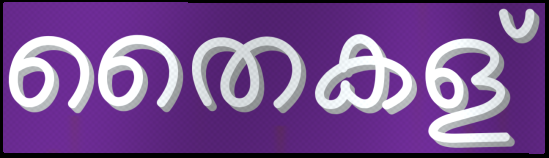
തൈകള്